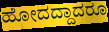
ಹೋದದ್ದಾದರೂ